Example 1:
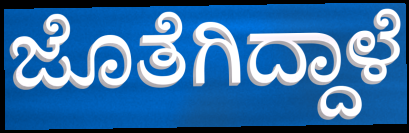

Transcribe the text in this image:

ಜೊತೆಗಿದ್ದಾಳೆ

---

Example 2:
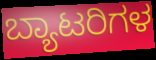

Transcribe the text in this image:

ಬ್ಯಾಟರಿಗಳ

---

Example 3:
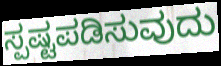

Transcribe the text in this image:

ಸ್ಪಷ್ಟಪಡಿಸುವುದು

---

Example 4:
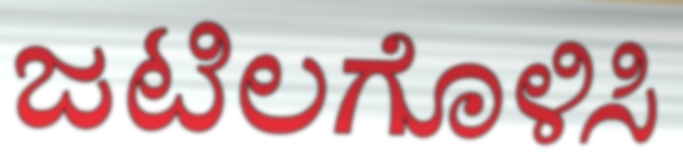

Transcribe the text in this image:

ಜಟಿಲಗೊಳಿಸಿ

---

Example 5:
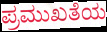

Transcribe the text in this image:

ಪ್ರಮುಖತೆಯ